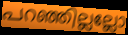
പറഞ്ഞില്ലല്ലോ